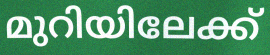
മുറിയിലേക്ക്